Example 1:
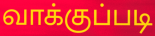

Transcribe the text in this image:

வாக்குப்படி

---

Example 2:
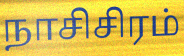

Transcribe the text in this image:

நாசிசிரம்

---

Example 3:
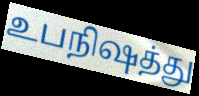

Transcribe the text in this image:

உபநிஷத்து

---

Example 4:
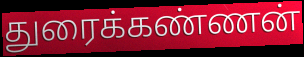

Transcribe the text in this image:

துரைக்கண்ணன்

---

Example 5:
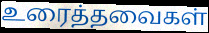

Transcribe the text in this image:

உரைத்தவைகள்